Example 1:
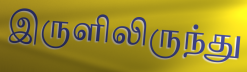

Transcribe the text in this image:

இருளிலிருந்து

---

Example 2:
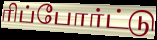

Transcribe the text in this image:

ரிப்போர்ட்டு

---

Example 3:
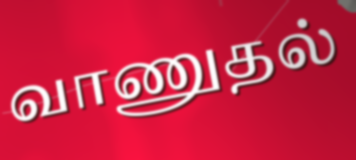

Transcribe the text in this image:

வாணுதல்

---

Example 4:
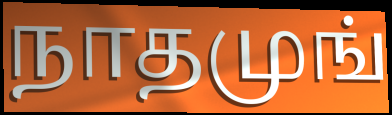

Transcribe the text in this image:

நாதமுங்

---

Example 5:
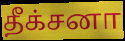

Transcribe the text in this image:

தீக்சனா